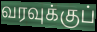
வரவுக்குப்